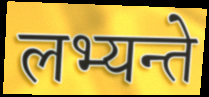
लभ्यन्ते